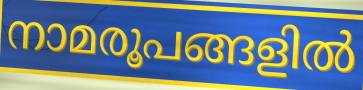
നാമരൂപങ്ങളിൽ